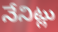
నేనిట్లు